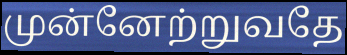
முன்னேற்றுவதே